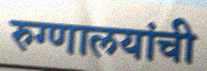
रुग्णालयांची